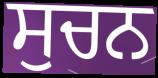
ਸੁਚਨ